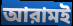
আরামই